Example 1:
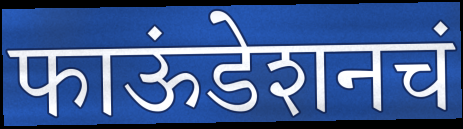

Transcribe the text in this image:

फाऊंडेशनचं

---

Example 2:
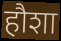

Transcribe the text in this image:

हौशा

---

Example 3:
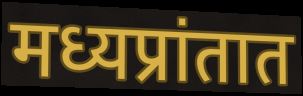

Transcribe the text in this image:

मध्यप्रांतात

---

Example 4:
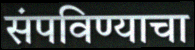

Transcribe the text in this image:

संपविण्याचा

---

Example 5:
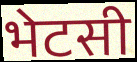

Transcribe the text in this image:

भेटसी